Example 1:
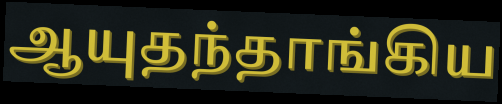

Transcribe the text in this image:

ஆயுதந்தாங்கிய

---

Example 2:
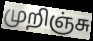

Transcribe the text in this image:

முறிஞ்சு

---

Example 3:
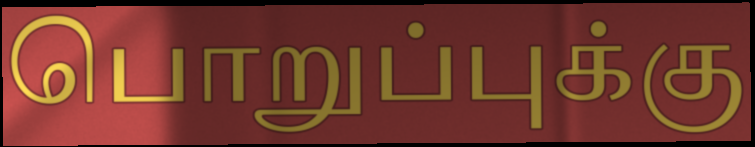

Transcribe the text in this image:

பொறுப்புக்கு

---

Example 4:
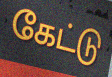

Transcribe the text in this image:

கேட்டு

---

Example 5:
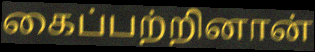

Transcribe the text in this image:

கைப்பற்றினான்